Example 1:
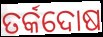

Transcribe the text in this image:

ତର୍କଦୋଷ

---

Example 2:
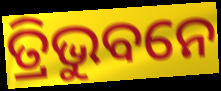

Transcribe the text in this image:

ତ୍ରିଭୁବନେ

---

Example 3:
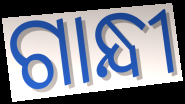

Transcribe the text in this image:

ଗାନ୍ଧୀ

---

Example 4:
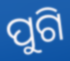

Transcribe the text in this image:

ପୁଗି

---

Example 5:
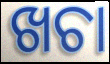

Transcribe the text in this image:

ଖଚା